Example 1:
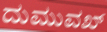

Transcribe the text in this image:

ದುಮುವಖ್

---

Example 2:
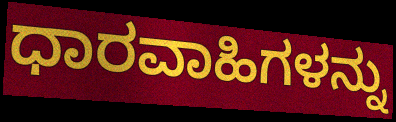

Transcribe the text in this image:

ಧಾರವಾಹಿಗಳನ್ನು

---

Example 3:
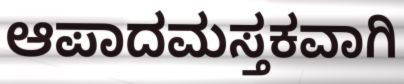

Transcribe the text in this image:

ಆಪಾದಮಸ್ತಕವಾಗಿ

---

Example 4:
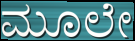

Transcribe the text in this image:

ಮೂಲೇ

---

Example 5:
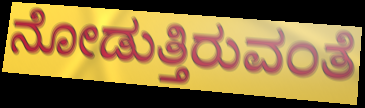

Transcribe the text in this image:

ನೋಡುತ್ತಿರುವಂತೆ